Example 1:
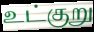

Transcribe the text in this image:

உட்குறு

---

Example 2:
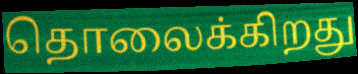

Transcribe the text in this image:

தொலைக்கிறது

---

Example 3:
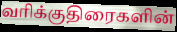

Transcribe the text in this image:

வரிக்குதிரைகளின்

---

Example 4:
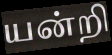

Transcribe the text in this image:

யன்றி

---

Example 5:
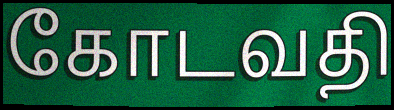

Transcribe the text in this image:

கோடவதி